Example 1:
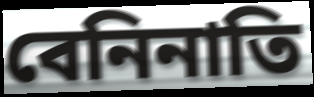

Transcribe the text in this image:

বেনিনাতি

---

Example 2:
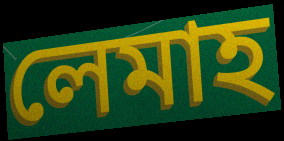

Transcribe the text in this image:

লেমাহ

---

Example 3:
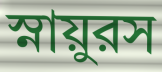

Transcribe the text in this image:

স্নায়ুরস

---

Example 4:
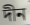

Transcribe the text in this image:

দীন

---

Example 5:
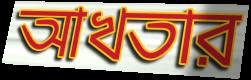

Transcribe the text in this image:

আখতার